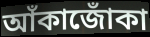
আঁকাজোঁকা